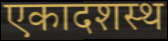
एकादशस्थ